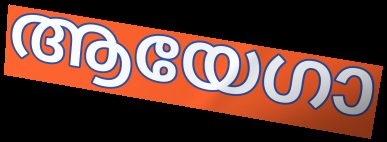
ആയേഗാ